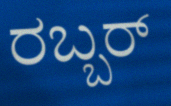
ರಬ್ಬರ್